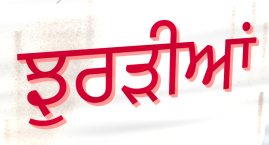
ਝੁਰੜੀਆਂ